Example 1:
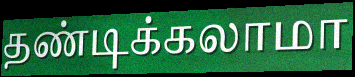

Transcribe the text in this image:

தண்டிக்கலாமா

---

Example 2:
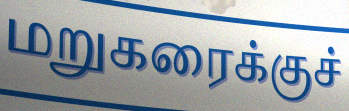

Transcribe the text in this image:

மறுகரைக்குச்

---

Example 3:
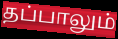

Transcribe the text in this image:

தப்பாலும்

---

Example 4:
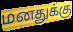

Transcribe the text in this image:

மனதுக்கு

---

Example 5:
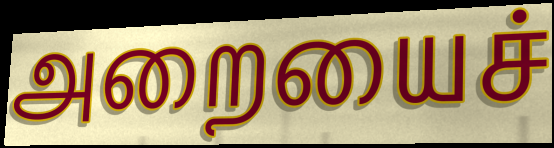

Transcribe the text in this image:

அறையைச்